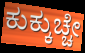
ಕುಕ್ಕುಚ್ಚೇ